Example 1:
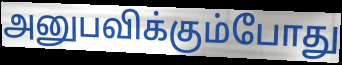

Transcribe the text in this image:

அனுபவிக்கும்போது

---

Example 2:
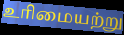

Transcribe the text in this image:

உரிமையற்று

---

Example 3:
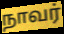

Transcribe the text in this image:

நாவர்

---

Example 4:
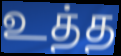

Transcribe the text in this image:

உத்த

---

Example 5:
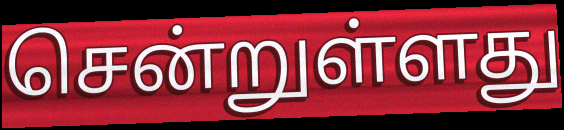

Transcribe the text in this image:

சென்றுள்ளது